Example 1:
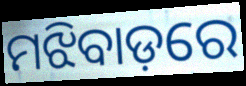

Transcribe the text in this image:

ମଝିବାଡ଼ରେ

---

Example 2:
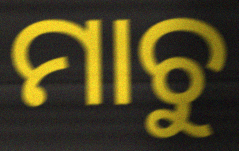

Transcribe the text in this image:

ମାଚୁ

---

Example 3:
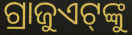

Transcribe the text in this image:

ଗ୍ରାଜୁଏଟ୍‌ଙ୍କୁ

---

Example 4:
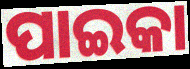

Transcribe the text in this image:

ପାଇକା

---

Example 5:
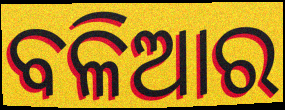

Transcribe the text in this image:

ବଳିଆର